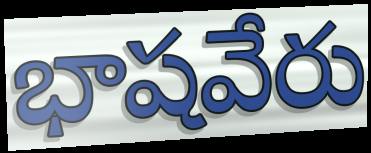
భాషవేరు